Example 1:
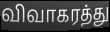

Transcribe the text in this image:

விவாகரத்து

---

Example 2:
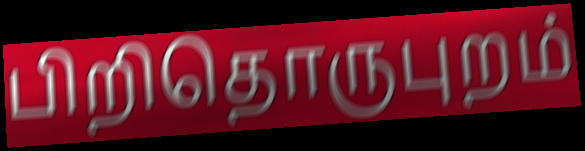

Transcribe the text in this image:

பிறிதொருபுறம்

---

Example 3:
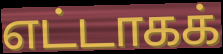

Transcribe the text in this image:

எட்டாகக்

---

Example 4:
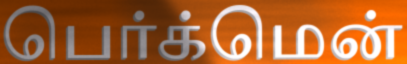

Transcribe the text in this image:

பெர்க்மென்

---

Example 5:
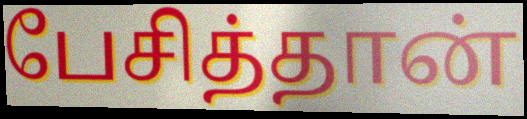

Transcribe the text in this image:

பேசித்தான்